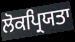
ਲੋਕਪ੍ਰਿਯਤਾ